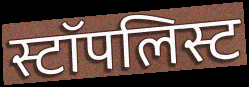
स्टॉपलिस्ट